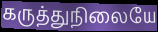
கருத்துநிலையே